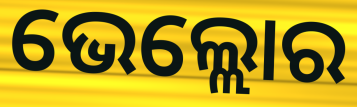
ଭେଲ୍ଲୋର